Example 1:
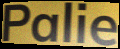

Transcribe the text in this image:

Palie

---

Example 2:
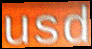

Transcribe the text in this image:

usd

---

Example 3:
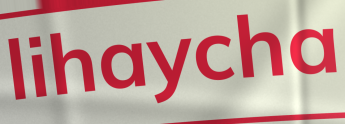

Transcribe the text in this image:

lihaycha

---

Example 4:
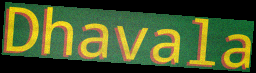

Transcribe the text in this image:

Dhavala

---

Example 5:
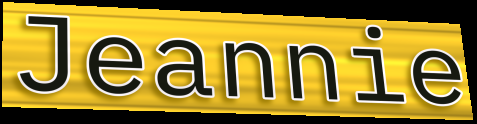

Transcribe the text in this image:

Jeannie